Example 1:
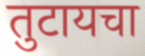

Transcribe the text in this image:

तुटायचा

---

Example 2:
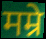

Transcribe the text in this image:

मम्रे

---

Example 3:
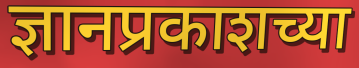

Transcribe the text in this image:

ज्ञानप्रकाशच्या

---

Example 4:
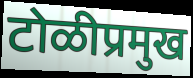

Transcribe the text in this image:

टोळीप्रमुख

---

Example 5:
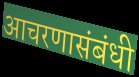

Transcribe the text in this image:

आचरणासंबंधी